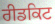
ਰੀਡਕਿਟ